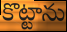
కొట్టాను